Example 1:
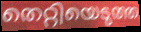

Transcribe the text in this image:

തെറ്റിയെടുത്ത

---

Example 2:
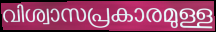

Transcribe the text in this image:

വിശ്വാസപ്രകാരമുള്ള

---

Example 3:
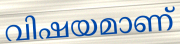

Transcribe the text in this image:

വിഷയമാണ്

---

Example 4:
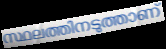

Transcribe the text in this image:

സ്ഥലത്തിനടുത്താണ്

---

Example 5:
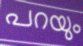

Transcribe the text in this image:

പറയും